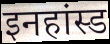
इनहांस्ड